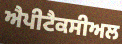
ਐਪੀਟੈਕਸੀਅਲ